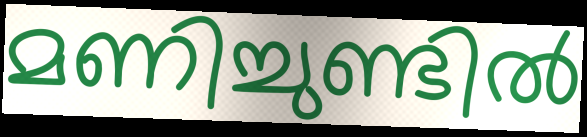
മണിച്ചുണ്ടിൽ